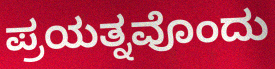
ಪ್ರಯತ್ನವೊಂದು